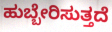
ಹುಬ್ಬೇರಿಸುತ್ತದೆ